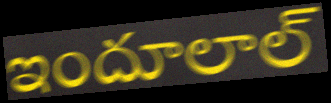
ఇందూలాల్